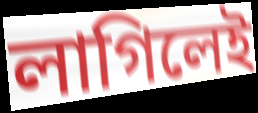
লাগিলেই